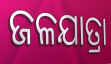
ଜଳଯାତ୍ରା